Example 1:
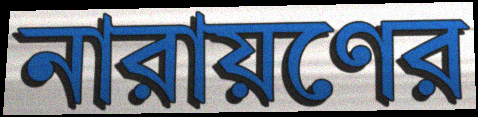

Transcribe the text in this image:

নারায়ণের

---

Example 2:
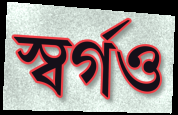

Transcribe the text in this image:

স্বর্গও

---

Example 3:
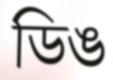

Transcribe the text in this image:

ডিঙ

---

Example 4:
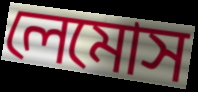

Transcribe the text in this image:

লেমোস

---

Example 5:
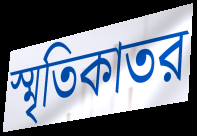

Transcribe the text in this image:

স্মৃতিকাতর